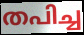
തപിച്ച